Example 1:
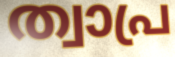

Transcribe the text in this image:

ത്വാപ്ര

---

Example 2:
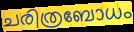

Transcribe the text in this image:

ചരിത്രബോധം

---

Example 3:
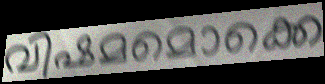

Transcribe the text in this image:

വിഷമമൊക്കെ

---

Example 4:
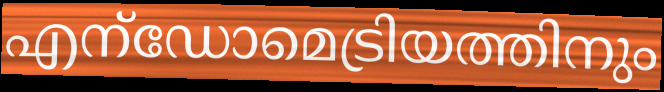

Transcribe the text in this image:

എന്ഡോമെട്രിയത്തിനും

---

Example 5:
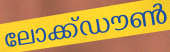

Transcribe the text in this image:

ലോക്ക്ഡൗൺ